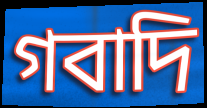
গবাদি